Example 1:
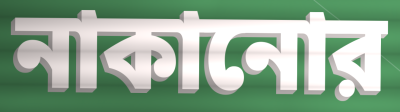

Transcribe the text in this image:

নাকানোর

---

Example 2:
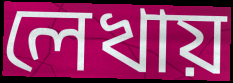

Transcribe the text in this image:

লেখায়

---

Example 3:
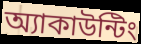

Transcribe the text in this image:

অ্যাকাউন্টিং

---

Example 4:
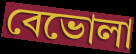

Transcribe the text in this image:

বেভোলা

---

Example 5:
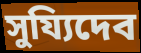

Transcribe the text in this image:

সুয্যিদেব